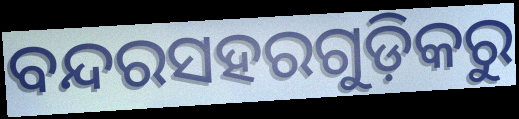
ବନ୍ଦରସହରଗୁଡ଼ିକରୁ